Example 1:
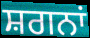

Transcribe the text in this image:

ਸ਼ਗਨਾਂ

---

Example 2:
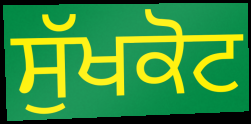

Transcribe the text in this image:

ਸੁੱਖਕੋਟ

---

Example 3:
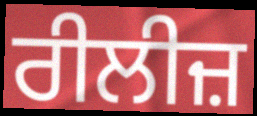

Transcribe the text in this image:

ਰੀਲੀਜ਼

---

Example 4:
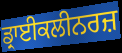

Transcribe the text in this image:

ਡ੍ਰਾਈਕਲੀਨਰਜ਼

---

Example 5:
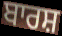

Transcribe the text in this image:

ਬਾਰਸ਼